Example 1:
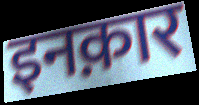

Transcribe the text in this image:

इनक़ार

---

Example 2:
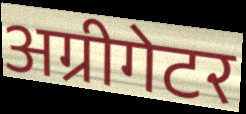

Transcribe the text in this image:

अग्रीगेटर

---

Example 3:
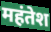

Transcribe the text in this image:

महंतेश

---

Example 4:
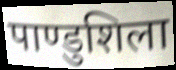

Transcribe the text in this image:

पाण्डुशिला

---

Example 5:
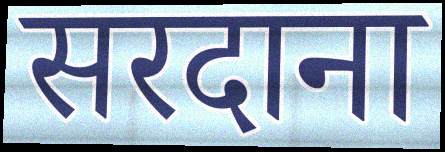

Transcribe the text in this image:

सरदाना